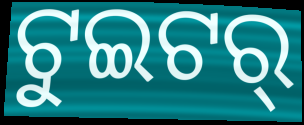
ଟୁଇଟର୍